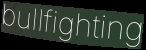
bullfighting